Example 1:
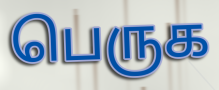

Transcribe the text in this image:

பெருக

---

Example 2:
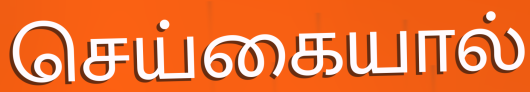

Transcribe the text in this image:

செய்கையால்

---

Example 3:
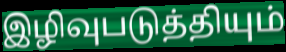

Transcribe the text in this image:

இழிவுபடுத்தியும்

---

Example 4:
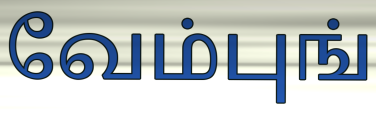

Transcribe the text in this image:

வேம்புங்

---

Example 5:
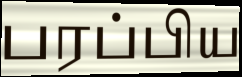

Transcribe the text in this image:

பரப்பிய